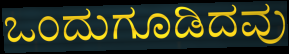
ಒಂದುಗೂಡಿದವು